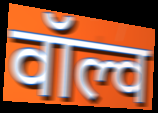
वॉल्व